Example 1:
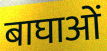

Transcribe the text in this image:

बाघाओं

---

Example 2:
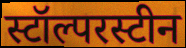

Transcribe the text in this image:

स्टॉल्परस्टीन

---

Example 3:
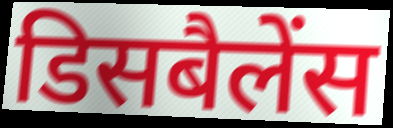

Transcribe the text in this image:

डिसबैलेंस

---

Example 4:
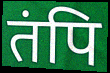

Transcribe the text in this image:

तंपि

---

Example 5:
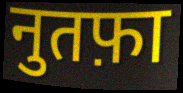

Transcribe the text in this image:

नुतफ़ा